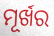
ମୂର୍ଖର